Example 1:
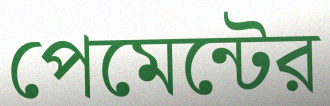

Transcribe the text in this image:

পেমেন্টের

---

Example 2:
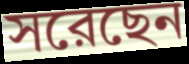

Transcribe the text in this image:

সরেছেন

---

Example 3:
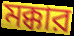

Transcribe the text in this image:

মক্কার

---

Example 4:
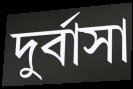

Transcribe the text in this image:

দুর্বাসা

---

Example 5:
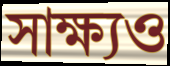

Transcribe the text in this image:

সাক্ষ্যও